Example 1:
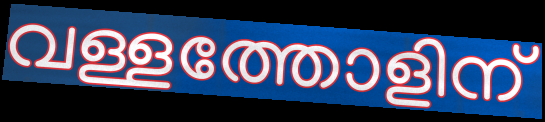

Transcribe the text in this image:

വള്ളത്തോളിന്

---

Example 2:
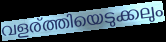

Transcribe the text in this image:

വളര്ത്തിയെടുക്കലും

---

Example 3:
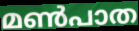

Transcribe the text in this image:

മൺപാത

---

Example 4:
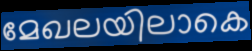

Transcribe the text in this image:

മേഖലയിലാകെ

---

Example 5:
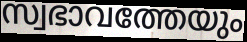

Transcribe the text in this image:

സ്വഭാവത്തേയും